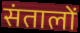
संतालों